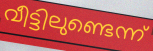
വീട്ടിലുണ്ടെന്ന്